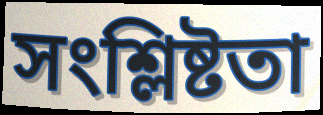
সংশ্লিষ্টতা